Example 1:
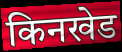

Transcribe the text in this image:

किनखेड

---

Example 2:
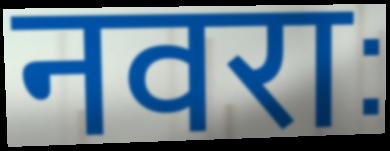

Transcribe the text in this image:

नवराः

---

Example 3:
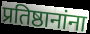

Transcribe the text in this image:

प्रतिष्ठानांना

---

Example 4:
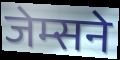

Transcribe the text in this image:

जेम्सने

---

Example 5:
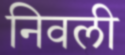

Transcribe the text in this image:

निवली